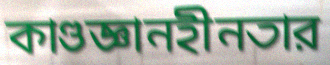
কাণ্ডজ্ঞানহীনতার